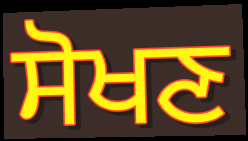
ਸੋਖਣ